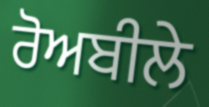
ਰੋਅਬੀਲੇ